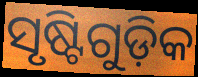
ସୃଷ୍ଟିଗୁଡ଼ିକ